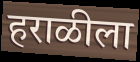
हराळीला